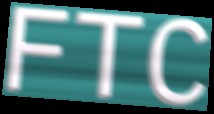
FTC